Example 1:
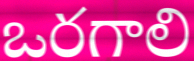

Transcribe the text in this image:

ఒరగాలి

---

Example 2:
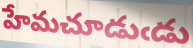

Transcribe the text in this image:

హేమచూడుఁడు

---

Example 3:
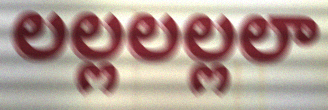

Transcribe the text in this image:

లల్లలల్లలా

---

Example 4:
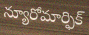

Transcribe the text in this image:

న్యూరోమార్ఫిక్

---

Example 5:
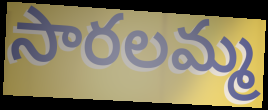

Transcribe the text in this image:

సారలమ్మ